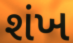
શંખ